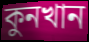
কুনখান